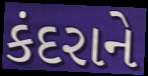
કંદરાને